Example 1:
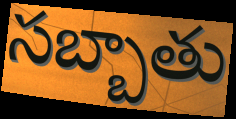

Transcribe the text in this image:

సబ్బాతు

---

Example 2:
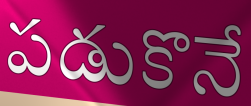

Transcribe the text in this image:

పడుకొనే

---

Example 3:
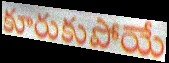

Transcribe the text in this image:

కూరుకుపోయే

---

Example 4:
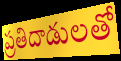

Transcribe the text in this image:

ప్రతిదాడులతో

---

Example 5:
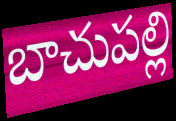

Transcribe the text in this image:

బాచుపల్లి